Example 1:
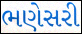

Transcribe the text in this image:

ભણેસરી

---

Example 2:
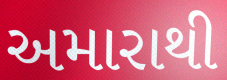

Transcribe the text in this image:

અમારાથી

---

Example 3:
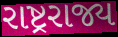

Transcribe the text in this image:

રાષ્ટ્રરાજ્ય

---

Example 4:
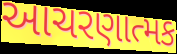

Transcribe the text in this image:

આચરણાત્મક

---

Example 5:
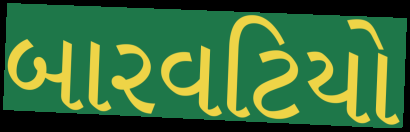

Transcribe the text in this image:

બારવટિયો